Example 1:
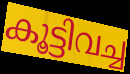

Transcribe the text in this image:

കൂട്ടിവച്ച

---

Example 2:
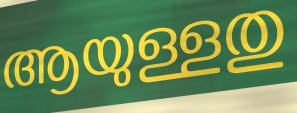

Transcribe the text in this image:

ആയുള്ളതു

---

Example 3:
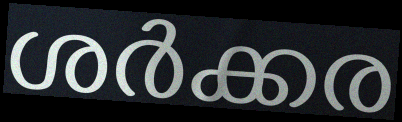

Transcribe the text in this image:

ശർക്കര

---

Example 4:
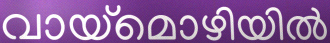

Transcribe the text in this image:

വായ്മൊഴിയിൽ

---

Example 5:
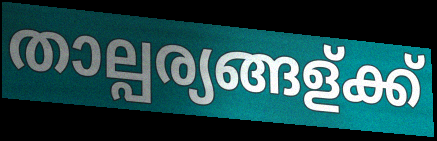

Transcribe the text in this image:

താല്പര്യങ്ങള്ക്ക്